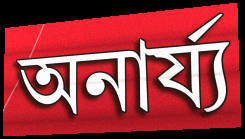
অনাৰ্য্য